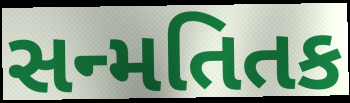
સન્મતિતક